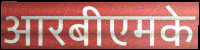
आरबीएमके